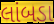
લાંબડા